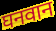
घनवान